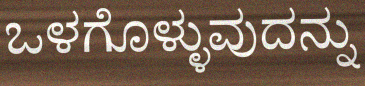
ಒಳಗೊಳ್ಳುವುದನ್ನು